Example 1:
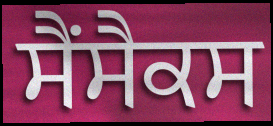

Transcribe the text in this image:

ਸੈਂਸੈਕਸ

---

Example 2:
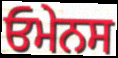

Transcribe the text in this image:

ਓਮੇਨਸ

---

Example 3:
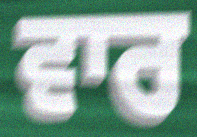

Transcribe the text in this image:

ਵਾਰ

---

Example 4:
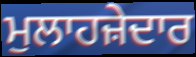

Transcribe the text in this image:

ਮੁਲਾਹਜ਼ੇਦਾਰ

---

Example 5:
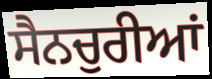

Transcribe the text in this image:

ਸੈਨਚੁਰੀਆਂ